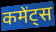
कमेंट्स